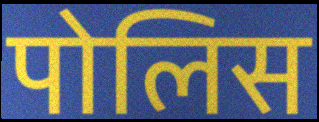
पोलिस